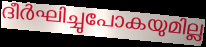
ദീർഘിച്ചുപോകയുമില്ല